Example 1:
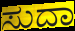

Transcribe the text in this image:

ಸುದಾ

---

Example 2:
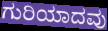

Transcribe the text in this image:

ಗುರಿಯಾದವು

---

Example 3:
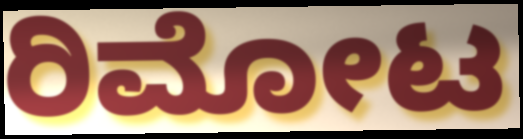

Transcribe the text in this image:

ರಿಮೋಟ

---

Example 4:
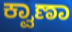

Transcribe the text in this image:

ಕ್ವಾಣಾ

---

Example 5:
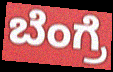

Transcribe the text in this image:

ಬೆಂಗ್ರೆ